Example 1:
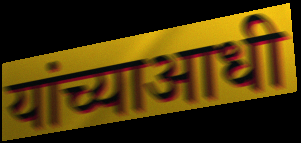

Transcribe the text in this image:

यांच्याआधी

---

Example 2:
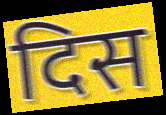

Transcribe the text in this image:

दिस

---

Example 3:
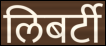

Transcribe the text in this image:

लिबर्टी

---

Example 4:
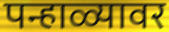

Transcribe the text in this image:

पन्हाळ्यावर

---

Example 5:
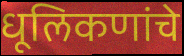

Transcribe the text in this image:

धूलिकणांचे